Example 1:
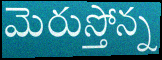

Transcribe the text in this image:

మెరుస్తోన్న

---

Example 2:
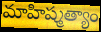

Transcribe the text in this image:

మాహిష్మత్యాం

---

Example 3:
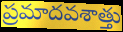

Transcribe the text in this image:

ప్రమాదవశాత్తు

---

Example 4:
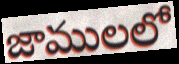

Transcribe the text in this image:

జాములలో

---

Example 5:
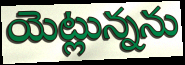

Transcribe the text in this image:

యెట్లున్నను